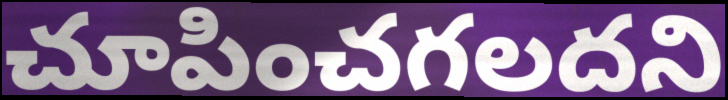
చూపించగలదని